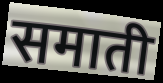
समाती